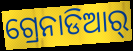
ଗ୍ରେନାଡିଆର୍